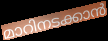
മാറിനടക്കാൻ